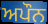
ਅਪੌਨ